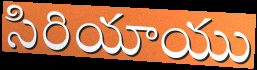
సిరియాయు